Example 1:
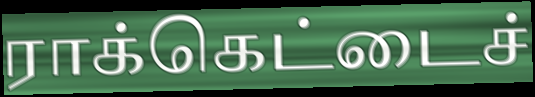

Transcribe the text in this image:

ராக்கெட்டைச்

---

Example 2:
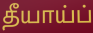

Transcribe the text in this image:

தீயாய்ப்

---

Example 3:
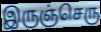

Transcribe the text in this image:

இருஞ்செரு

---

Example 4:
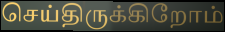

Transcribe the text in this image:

செய்திருக்கிறோம்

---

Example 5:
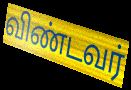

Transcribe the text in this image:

விண்டவர்